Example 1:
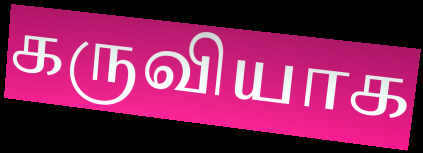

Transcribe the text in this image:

கருவியாக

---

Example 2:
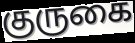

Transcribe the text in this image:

குருகை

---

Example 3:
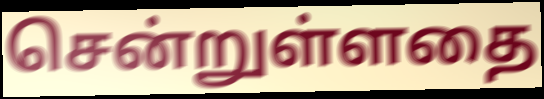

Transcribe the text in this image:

சென்றுள்ளதை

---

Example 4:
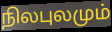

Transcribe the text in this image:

நிலபுலமும்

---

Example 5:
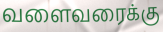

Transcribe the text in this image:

வளைவரைக்கு